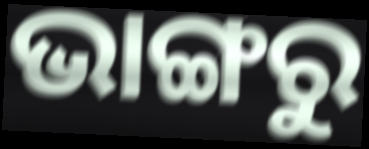
ଭାଙ୍ଗରୁ